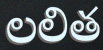
లలిత